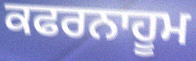
ਕਫਰਨਾਹੂਮ